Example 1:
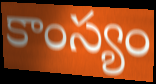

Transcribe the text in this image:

కాంస్యం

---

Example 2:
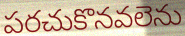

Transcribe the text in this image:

పరచుకొనవలెను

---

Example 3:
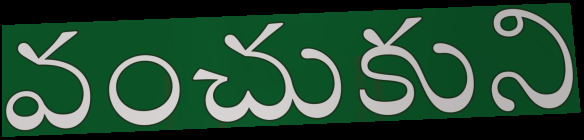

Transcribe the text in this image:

వంచుకుని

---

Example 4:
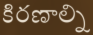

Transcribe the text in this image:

కిరణాల్ని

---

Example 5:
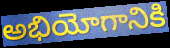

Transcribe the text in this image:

అభియోగానికి